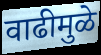
वाढीमुळे